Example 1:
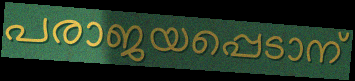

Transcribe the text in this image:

പരാജയപ്പെടാന്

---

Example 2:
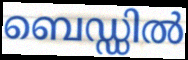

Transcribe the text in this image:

ബെഡ്ഡിൽ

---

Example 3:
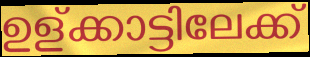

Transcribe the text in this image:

ഉള്ക്കാട്ടിലേക്ക്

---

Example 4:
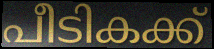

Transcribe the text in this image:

പീടികക്ക്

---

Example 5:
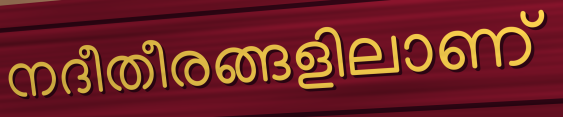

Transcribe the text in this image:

നദീതീരങ്ങളിലാണ്